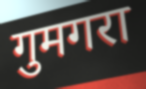
गुमगरा